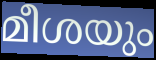
മീശയും